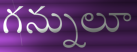
గన్నులూ